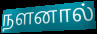
நளனால்